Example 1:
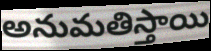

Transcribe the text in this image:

అనుమతిస్తాయి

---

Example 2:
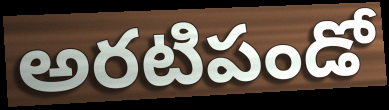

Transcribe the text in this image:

అరటిపండో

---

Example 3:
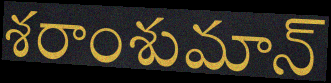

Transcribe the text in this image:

శరాంశుమాన్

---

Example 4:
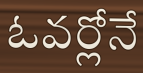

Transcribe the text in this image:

ఓవర్లోనే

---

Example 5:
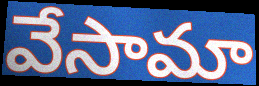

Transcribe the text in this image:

వేసామా